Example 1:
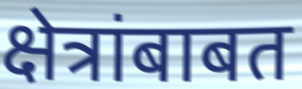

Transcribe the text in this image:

क्षेत्रांबाबत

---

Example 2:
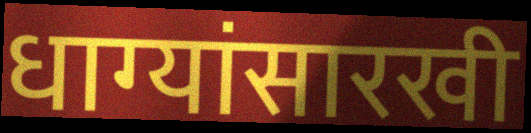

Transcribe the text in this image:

धाग्यांसारखी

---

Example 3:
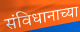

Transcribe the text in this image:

संविधानाच्या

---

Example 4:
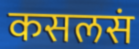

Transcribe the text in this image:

कसलसं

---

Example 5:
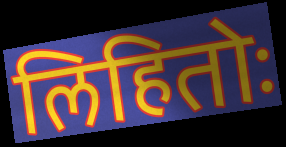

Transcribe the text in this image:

लिहितोः